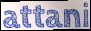
attani